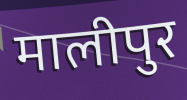
मालीपुर